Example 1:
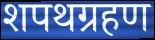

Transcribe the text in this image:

शपथग्रहण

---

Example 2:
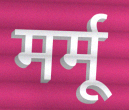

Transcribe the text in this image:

मर्मू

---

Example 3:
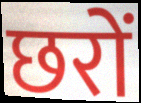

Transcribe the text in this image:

छरों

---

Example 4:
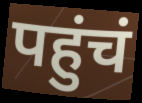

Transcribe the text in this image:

पहुंचं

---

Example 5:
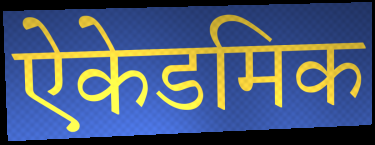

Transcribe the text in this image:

ऐकेडमिक